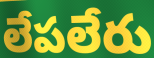
లేపలేరు